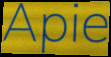
Apie